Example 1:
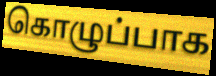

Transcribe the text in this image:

கொழுப்பாக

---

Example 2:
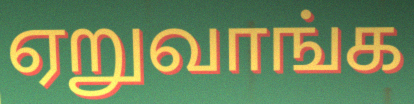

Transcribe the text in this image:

ஏறுவாங்க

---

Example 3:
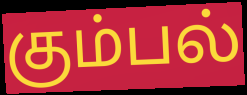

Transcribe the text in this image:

கும்பல்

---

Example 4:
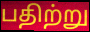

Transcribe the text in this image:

பதிற்று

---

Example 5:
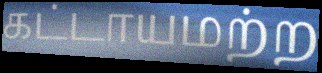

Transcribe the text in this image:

கட்டாயமற்ற